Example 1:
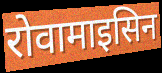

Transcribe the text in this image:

रोवामाइसिन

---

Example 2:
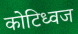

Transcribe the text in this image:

कोटिध्वज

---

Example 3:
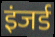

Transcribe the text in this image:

इंजर्ड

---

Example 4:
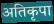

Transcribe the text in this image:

अतिकृपा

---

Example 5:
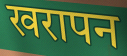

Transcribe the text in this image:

खरापन